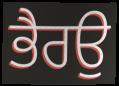
ਭੈਰਉ